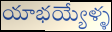
యాభయ్యేళ్ళ